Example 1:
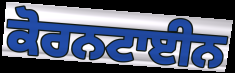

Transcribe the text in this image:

ਕੋਰਨਟਾਈਨ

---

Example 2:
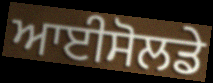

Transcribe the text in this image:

ਆਈਸੋਲਡੇ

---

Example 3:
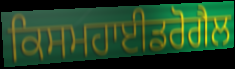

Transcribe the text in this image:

ਕਿਸਮਹਾਈਡਰੋਗੈਲ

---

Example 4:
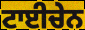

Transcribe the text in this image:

ਟਾਈਚੇਨ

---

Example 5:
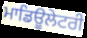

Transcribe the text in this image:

ਮਾਡਿਊਲੇਟਰੀ